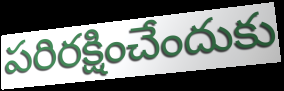
పరిరక్షించేందుకు